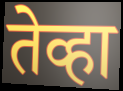
तेव्हा